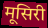
मूसिरी